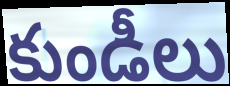
కుండీలు